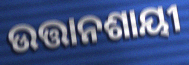
ଉତ୍ତାନଶାୟୀ